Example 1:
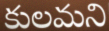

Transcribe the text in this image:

కులమని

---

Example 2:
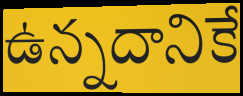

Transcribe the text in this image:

ఉన్నదానికే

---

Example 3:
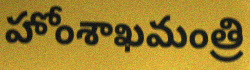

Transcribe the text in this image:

హోంశాఖమంత్రి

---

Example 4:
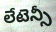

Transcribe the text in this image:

లేటెన్సీ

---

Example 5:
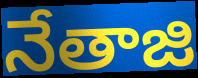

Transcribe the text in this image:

నేతాజి